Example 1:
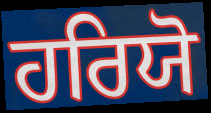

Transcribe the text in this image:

ਹਰਿਯੋ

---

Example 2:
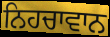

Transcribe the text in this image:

ਨਿਹਚਾਵਾਨ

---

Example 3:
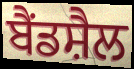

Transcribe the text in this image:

ਬੈਂਡਸ਼ੈਲ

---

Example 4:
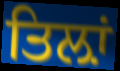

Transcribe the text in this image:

ਤਿਲ਼ਾਂ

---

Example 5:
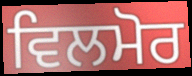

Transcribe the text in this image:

ਵਿਲਮੋਰ